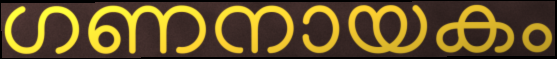
ഗണനായകം